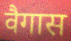
वैगास